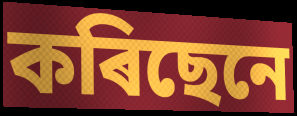
কৰিছেনে